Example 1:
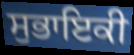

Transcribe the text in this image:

ਸੁਭਾਇਕੀ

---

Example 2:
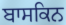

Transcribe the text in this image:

ਬਾਸਕਿਨ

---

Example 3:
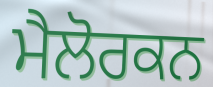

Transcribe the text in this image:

ਮੈਲੋਰਕਨ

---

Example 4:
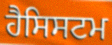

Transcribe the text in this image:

ਹੈਸਿਸਟਮ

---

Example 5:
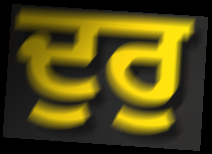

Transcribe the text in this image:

ਦੁਰੁ